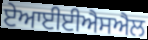
ਏਆਈਈਐਸਐਲ